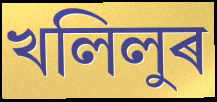
খলিলুৰ